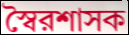
স্বৈরশাসক